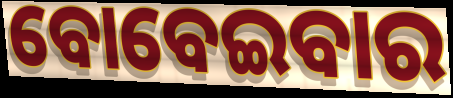
ବୋବେଇବାର